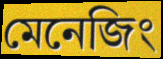
মেনেজিং